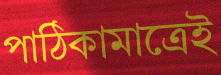
পাঠিকামাত্রেই